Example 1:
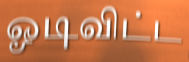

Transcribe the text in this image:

ஓடிவிட்ட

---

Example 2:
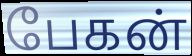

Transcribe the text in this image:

பேகன்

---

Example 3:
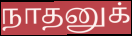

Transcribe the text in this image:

நாதனுக்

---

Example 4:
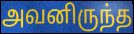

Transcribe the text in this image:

அவனிருந்த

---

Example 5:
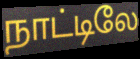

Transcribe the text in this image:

நாட்டிலே